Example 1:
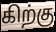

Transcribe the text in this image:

கிற்கு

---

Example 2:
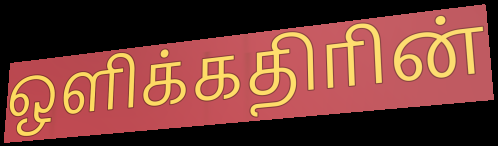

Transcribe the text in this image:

ஒளிக்கதிரின்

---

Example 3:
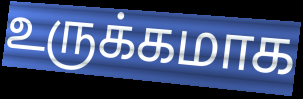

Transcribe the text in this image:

உருக்கமாக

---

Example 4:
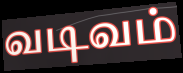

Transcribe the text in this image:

வடிவம்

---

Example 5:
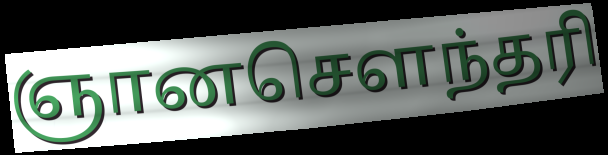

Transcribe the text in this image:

ஞானசெளந்தரி